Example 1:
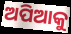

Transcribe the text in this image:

ଅପିଆକୁ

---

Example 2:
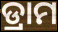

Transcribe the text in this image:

ଡ୍ରାମ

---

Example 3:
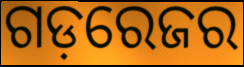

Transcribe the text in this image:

ଗଡ଼ରେଜର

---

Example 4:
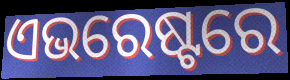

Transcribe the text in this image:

ଏଭରେଷ୍ଟରେ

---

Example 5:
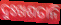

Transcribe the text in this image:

ଦୁଃଖଶତାନି